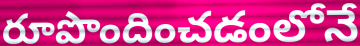
రూపొందించడంలోనే